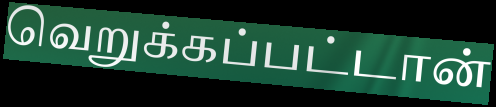
வெறுக்கப்பட்டான்